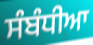
ਸੰਬੰਧੀਆ